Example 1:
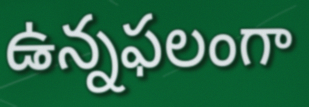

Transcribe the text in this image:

ఉన్నఫలంగా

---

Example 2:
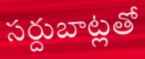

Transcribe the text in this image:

సర్దుబాట్లతో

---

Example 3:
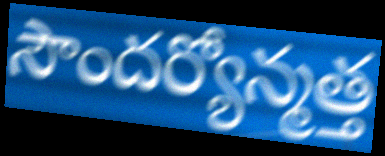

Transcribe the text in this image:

సౌందర్యోన్మత్త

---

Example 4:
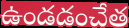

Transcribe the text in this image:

ఉండడంచేత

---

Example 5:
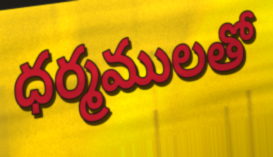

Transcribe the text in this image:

ధర్మములతో